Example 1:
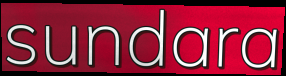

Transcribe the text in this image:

sundara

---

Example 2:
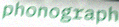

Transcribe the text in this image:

phonograph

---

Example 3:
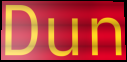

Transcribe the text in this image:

Dun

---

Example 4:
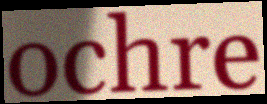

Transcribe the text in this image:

ochre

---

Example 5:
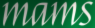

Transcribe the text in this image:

mams